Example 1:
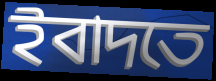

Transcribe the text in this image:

ইবাদতে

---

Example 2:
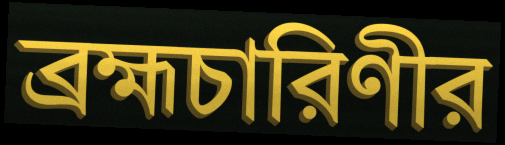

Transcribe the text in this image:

ব্রহ্মচারিণীর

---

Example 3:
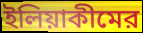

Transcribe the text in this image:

ইলিয়াকীমের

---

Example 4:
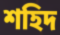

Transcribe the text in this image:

শহিদ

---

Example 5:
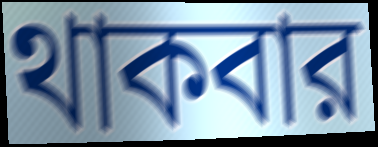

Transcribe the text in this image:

থাকবার